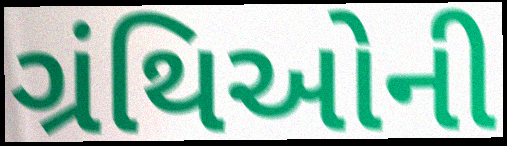
ગ્રંથિઓની